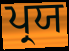
ਪ੍ਰਯ